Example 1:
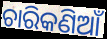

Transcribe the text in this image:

ଚାରିକଣିଆଁ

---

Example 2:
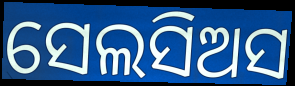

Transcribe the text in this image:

ସେଲସିଅସ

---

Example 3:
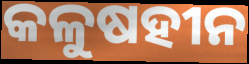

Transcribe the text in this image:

କଳୁଷହୀନ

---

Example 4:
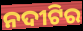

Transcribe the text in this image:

ନଦୀଟିର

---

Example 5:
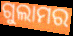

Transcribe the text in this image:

ଗୁଲାମର